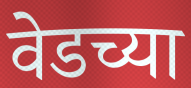
वेडच्या